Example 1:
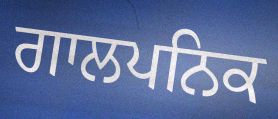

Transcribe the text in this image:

ਗਾਲਪਨਿਕ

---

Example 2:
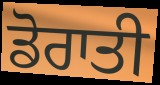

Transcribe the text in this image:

ਡੋਰਾਤੀ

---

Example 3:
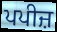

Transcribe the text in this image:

ਪਪੀਜ਼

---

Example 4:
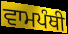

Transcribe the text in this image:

ਵਾਮਪੰਥੀ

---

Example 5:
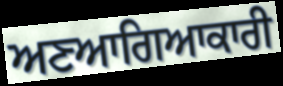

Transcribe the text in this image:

ਅਣਆਗਿਆਕਾਰੀ